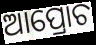
ଆପ୍ରୋଚ